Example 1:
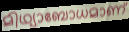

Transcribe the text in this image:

മിഥ്യാബോധമാണ്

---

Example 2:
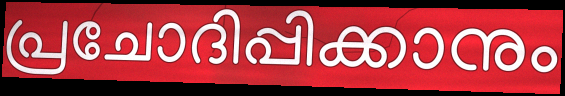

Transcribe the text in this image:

പ്രചോദിപ്പിക്കാനും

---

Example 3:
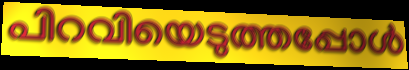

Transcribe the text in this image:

പിറവിയെടുത്തപ്പോൾ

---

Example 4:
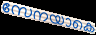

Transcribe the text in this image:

സേനയാകെ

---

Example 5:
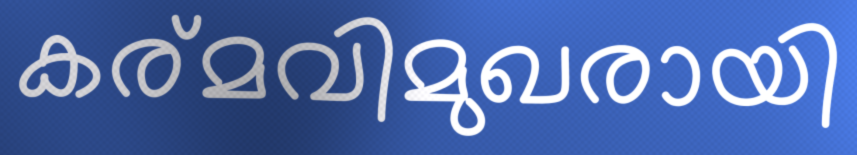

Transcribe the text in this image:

കര്മവിമുഖരായി